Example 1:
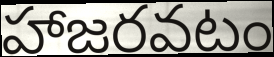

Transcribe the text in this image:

హాజరవటం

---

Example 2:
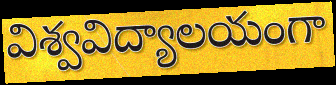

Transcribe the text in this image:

విశ్వవిద్యాలయంగా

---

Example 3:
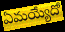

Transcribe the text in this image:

ఏమయ్యేదో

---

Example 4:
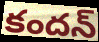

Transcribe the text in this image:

కందన్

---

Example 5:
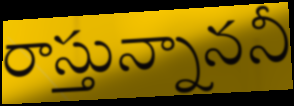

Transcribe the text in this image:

రాస్తున్నాననీ